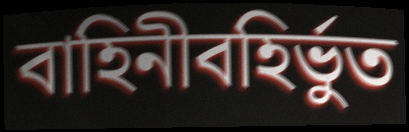
বাহিনীবহির্ভুত